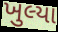
ખુલ્યા